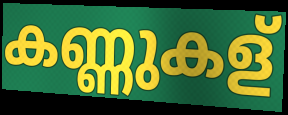
കണ്ണുകള്